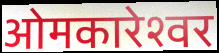
ओमकारेश्वर